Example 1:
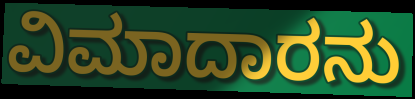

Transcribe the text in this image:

ವಿಮಾದಾರನು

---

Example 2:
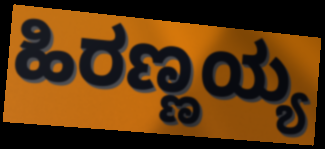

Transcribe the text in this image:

ಹಿರಣ್ಣಯ್ಯ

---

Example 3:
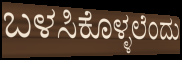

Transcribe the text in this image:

ಬಳಸಿಕೊಳ್ಳಲೆಂದು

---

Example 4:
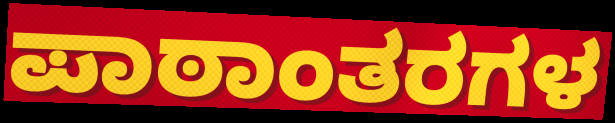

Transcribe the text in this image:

ಪಾಠಾಂತರಗಳ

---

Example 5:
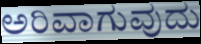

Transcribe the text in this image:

ಅರಿವಾಗುವುದು